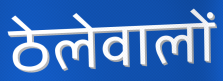
ठेलेवालों